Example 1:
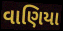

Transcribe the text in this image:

વાણિયા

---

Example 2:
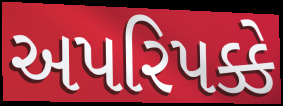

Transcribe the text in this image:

અપરિપક્કે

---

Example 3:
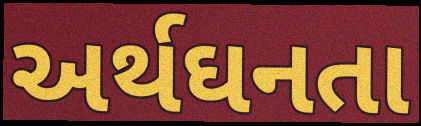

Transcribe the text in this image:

અર્થઘનતા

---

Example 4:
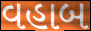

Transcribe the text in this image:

વહાબ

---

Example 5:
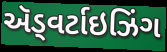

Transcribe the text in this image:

ઍડ્વર્ટાઇઝિંગ